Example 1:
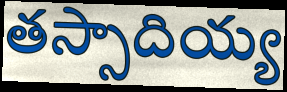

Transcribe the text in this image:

తస్సాదియ్య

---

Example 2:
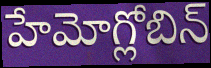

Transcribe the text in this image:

హేమోగ్లోబిన్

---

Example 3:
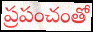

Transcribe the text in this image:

ప్రపంచంతో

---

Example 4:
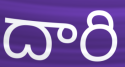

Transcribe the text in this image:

దారి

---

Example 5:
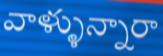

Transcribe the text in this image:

వాళ్ళున్నారా